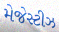
મેજેસ્ટીઝ